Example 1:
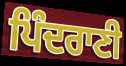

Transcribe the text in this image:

ਪਿੰਦਰਾਣੀ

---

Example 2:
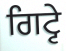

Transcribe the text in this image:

ਗਿਟ੍ਟੇ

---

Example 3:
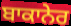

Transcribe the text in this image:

ਬਾਕਾਨੇਰ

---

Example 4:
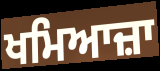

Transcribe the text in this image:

ਖਮਿਆਜ਼ਾ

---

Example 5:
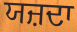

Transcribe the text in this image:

ਯਜ਼ਦਾ